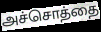
அச்சொத்தை